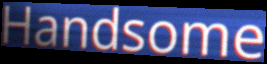
Handsome